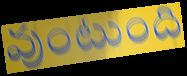
వుంటుంది